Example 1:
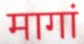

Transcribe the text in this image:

मागां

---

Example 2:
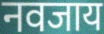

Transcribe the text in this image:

नवजाय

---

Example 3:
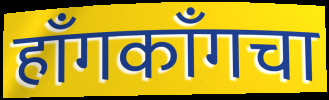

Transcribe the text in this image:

हॉंगकॉंगचा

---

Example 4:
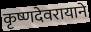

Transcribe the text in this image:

कृष्णदेवरायाने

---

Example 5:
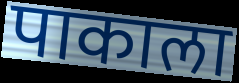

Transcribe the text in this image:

पाकाला